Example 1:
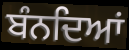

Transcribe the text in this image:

ਬੰਨਦਿਆਂ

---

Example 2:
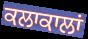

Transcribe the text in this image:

ਕਲਾਕਾਲਾਂ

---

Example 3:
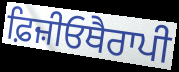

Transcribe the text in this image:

ਫ਼ਿਜ਼ੀਓਥੈਰਾਪੀ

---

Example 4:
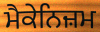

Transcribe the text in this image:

ਮੈਕੇਨਿਜ਼ਮ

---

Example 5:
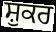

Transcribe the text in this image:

ਸ਼ੁਕਰ